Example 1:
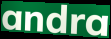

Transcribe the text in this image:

andra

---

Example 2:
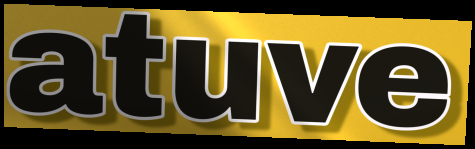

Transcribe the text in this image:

atuve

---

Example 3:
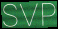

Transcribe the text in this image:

SVP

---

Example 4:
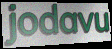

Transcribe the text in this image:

jodavu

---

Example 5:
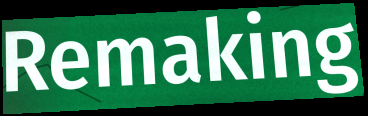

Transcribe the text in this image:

Remaking